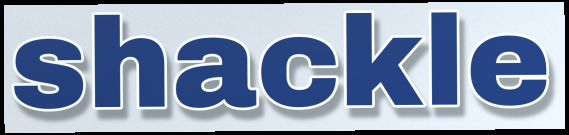
shackle